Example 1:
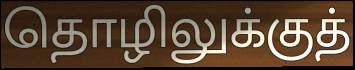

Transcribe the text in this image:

தொழிலுக்குத்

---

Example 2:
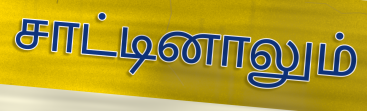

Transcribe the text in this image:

சாட்டினாலும்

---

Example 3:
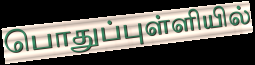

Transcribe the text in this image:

பொதுப்புள்ளியில்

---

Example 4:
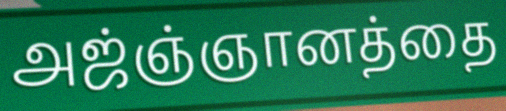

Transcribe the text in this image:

அஜ்ஞ்ஞானத்தை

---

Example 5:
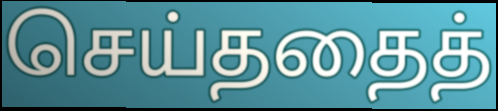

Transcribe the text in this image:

செய்ததைத்